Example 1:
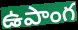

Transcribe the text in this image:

ఉపాంగ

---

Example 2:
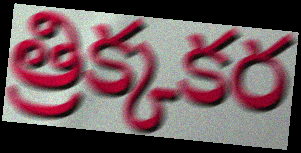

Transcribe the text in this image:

త్రిక్కకర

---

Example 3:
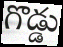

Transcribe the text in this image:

గొడ్డు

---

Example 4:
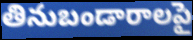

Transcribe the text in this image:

తినుబండారాలపై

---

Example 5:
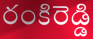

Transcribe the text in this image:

రంకిరెడ్డి